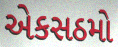
એકસઠમો